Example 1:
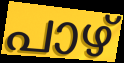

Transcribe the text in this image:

പാഴ്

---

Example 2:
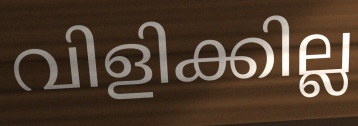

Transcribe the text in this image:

വിളിക്കില്ല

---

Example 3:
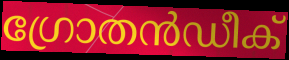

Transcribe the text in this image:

ഗ്രോതൻഡീക്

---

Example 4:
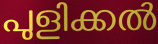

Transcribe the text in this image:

പുളിക്കൽ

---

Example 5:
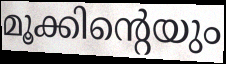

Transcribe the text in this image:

മൂക്കിന്റെയും